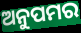
ଅନୁପମର